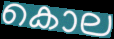
കൊല